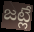
జట్లే